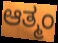
ಆತ್ಮಂ